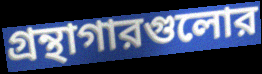
গ্রন্থাগারগুলোর